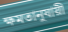
ক্ষমতানুযায়ী